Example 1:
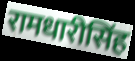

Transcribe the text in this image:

रामधारीसिंह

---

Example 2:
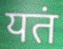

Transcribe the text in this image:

यतं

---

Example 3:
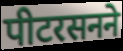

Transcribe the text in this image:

पीटरसनने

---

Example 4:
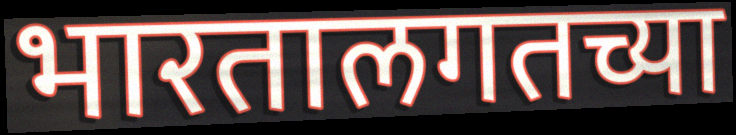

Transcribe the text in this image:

भारतालगतच्या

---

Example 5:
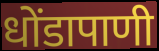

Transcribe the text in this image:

धोंडापाणी